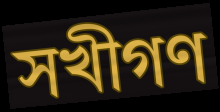
সখীগণ